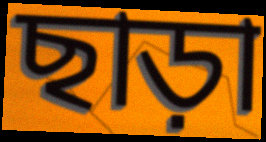
ছাড়া